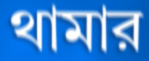
থামার